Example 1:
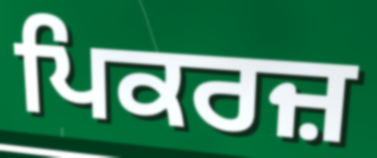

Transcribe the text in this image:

ਪਿਕਰਜ਼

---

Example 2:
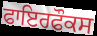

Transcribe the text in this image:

ਫਾਇਰਫੌਕਸ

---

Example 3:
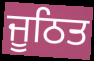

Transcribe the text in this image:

ਜੂਠਿਤ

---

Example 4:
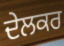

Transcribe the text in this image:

ਦੇਲਕਰ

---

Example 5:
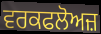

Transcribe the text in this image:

ਵਰਕਫਲੋਅਜ਼